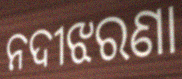
ନଦୀଝରଣା